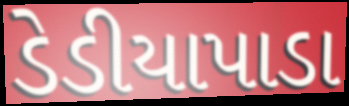
ડેડીયાપાડા